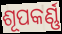
ଶୂପକର୍ଣ୍ଣ